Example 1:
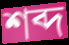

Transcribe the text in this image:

শব্দ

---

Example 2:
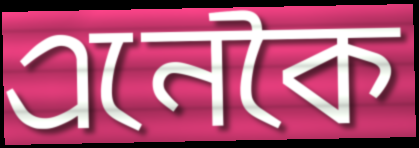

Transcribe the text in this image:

এনেকৈ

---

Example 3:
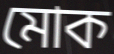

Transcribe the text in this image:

মোক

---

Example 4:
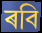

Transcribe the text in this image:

ৰবি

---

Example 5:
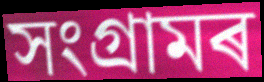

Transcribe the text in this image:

সংগ্ৰামৰ